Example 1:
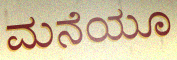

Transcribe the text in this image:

ಮನೆಯೂ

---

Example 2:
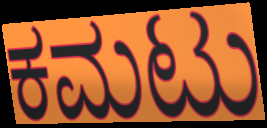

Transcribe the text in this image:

ಕಮಟು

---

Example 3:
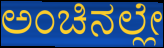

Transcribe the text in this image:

ಅಂಚಿನಲ್ಲೇ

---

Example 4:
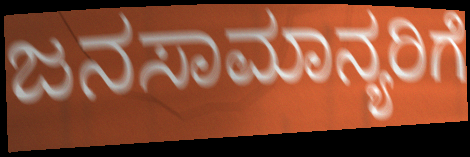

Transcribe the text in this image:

ಜನಸಾಮಾನ್ಯರಿಗೆ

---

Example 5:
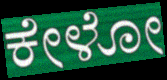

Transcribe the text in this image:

ಕೇಳೋ